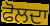
ਫੋਲਦਾ